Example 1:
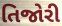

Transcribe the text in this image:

તિજોરી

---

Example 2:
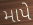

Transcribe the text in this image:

માપે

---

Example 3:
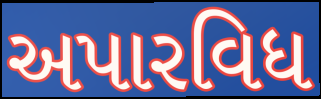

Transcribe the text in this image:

અપારવિધ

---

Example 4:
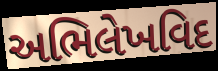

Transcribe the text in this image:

અભિલેખવિદ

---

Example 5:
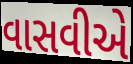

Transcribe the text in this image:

વાસવીએ